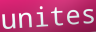
unites